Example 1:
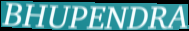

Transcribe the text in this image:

BHUPENDRA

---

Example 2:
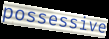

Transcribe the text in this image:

possessive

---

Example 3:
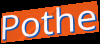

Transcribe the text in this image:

Pothe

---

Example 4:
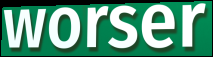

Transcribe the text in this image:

worser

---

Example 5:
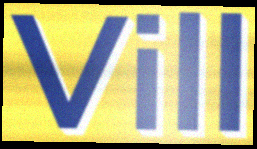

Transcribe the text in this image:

Vill